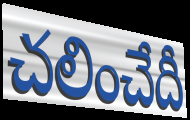
చలించేదీ